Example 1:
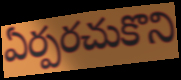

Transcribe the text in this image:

ఏర్పరచుకొని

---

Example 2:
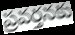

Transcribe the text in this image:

ప్రవర్తనకు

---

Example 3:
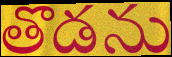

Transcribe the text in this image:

తొడను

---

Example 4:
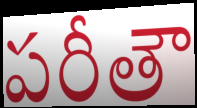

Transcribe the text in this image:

పరీతౌ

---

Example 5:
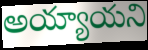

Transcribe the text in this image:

అయ్యాయని